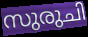
സുരുചി